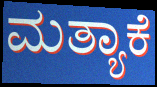
ಮತ್ಯಾಕೆ